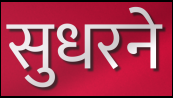
सुधरने